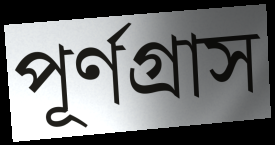
পূর্ণগ্রাস